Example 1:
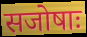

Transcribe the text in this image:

सजोषाः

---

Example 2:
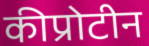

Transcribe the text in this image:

कीप्रोटीन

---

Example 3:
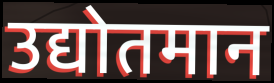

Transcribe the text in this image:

उद्योतमान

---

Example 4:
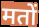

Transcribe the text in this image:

मतों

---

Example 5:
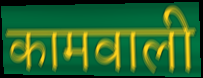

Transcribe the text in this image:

कामवाली